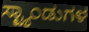
ಸ್ಟ್ಯಾಂಡುಗಳ